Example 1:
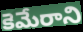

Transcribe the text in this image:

కెమేరాని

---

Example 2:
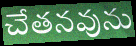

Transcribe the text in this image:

చేతనవును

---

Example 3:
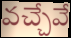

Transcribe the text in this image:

వచ్చేవే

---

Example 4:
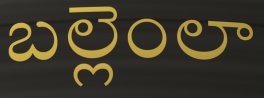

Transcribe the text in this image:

బల్లెంలా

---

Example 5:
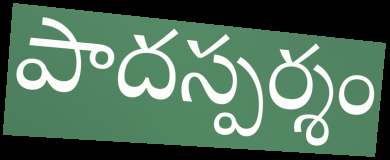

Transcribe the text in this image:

పాదస్పర్శం